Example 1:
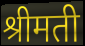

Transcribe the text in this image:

श्रीमती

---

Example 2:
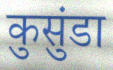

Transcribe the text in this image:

कुसुंडा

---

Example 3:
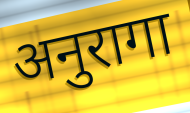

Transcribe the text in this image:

अनुरागा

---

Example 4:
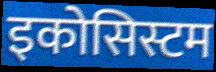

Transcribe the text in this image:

इकोसिस्टम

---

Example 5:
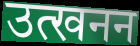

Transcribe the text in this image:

उत्‍खनन